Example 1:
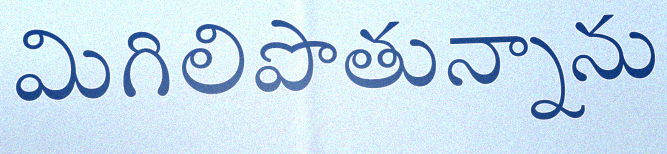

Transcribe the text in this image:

మిగిలిపొతున్నాను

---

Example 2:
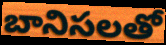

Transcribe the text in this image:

బానిసలతో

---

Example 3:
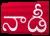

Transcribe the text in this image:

నాడీ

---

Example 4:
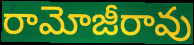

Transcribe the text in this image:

రామోజీరావు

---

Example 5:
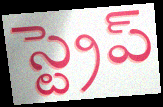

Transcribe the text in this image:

స్ట్రెప్